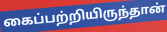
கைப்பற்றியிருந்தான்